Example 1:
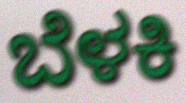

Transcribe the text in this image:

ಬೆಳಕಿ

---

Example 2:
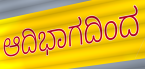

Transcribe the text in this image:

ಆದಿಭಾಗದಿಂದ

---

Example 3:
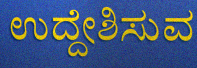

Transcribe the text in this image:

ಉದ್ದೇಶಿಸುವ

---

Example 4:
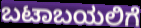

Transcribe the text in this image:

ಬಟಾಬಯಲಿಗೆ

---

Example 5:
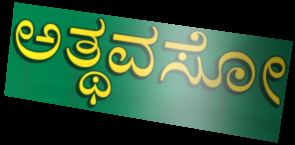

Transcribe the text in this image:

ಅತ್ಥವಸೋ